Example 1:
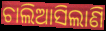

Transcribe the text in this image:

ଚାଲିଆସିଲାଣି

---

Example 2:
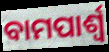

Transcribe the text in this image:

ବାମପାର୍ଶ୍ଵ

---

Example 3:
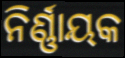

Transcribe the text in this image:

ନିର୍ଣ୍ଣାୟକ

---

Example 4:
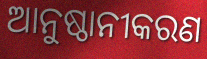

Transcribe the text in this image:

ଆନୁଷ୍ଠାନୀକରଣ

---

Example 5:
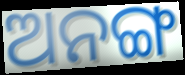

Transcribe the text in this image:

ଅନଙ୍ଗ